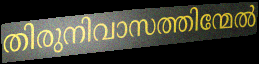
തിരുനിവാസത്തിന്മേൽ